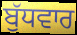
ਬੁੱਧਵਾਰ